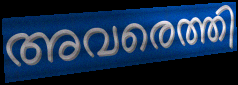
അവരെത്തി